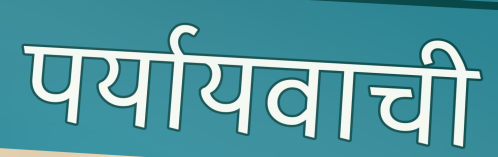
पर्यायवाची